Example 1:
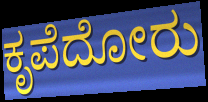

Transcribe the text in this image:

ಕೃಪೆದೋರು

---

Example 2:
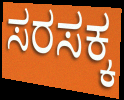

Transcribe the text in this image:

ಸರಸಕ್ಕ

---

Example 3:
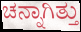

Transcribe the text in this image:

ಚನ್ನಾಗಿತ್ತು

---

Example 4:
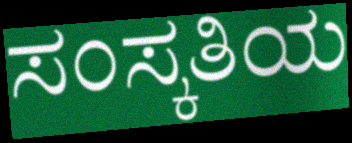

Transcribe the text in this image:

ಸಂಸ್ಕತಿಯ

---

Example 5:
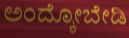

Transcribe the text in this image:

ಅಂದ್ಕೋಬೇಡಿ